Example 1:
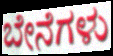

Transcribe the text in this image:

ಬೇನೆಗಳು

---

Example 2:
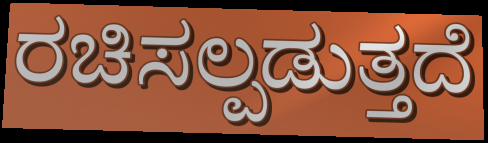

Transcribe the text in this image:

ರಚಿಸಲ್ಪಡುತ್ತದೆ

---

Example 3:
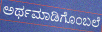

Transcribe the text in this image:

ಅರ್ಥಮಾಡಿಗೊಂಬಲೆ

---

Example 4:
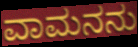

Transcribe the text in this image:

ವಾಮನನು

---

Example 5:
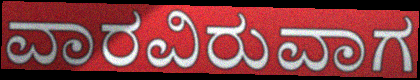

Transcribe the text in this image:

ವಾರವಿರುವಾಗ